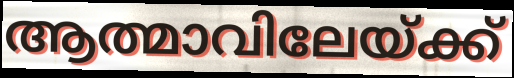
ആത്മാവിലേയ്ക്ക്